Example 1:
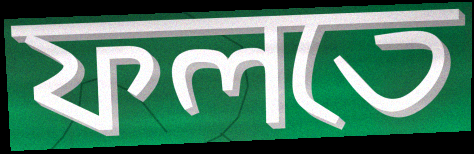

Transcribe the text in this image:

ফলতে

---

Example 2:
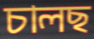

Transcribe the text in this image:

চালছ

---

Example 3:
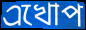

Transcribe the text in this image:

এখোপ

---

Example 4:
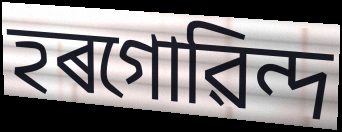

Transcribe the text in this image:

হৰগোৱিন্দ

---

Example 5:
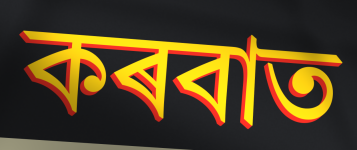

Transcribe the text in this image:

কৰবাত